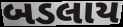
બડલાય